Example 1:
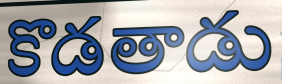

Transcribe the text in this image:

కొడతాడు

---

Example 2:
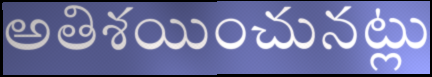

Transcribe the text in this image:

అతిశయించునట్లు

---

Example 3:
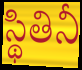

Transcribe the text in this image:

స్థితినీ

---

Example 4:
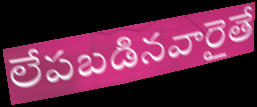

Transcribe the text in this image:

లేపబడినవారైతే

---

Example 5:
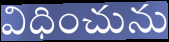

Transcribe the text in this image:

విధించును